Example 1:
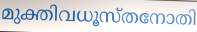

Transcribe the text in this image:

മുക്തിവധൂസ്തനോതി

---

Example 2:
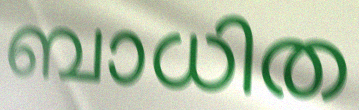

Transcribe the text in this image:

ബാധിത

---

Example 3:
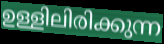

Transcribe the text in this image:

ഉള്ളിലിരിക്കുന്ന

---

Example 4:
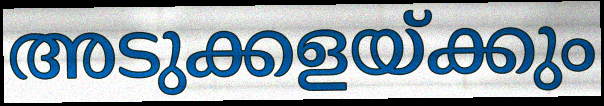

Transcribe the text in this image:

അടുക്കളയ്ക്കും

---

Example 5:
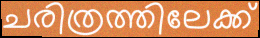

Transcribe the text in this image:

ചരിത്രത്തിലേക്ക്